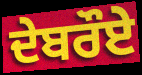
ਦੇਬਰੌਏ